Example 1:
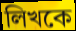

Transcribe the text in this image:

লিখকে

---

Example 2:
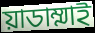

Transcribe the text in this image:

য়াডাম্মাই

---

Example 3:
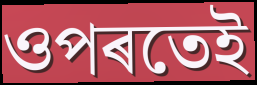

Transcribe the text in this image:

ওপৰতেই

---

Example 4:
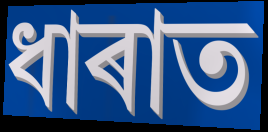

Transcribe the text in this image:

ধাৰাত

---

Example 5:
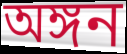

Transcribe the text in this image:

অঙ্গন